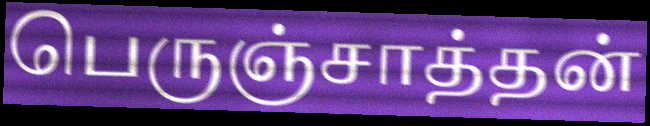
பெருஞ்சாத்தன்